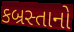
કબ્રસ્તાનો